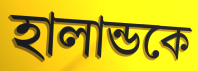
হালান্ডকে